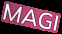
MAGI